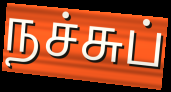
நச்சுப்